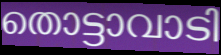
തൊട്ടാവാടി